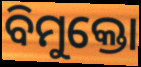
ବିମୁକ୍ତୋ